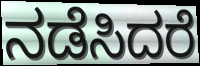
ನಡೆಸಿದರೆ